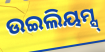
ଉଇଲିୟମ୍ସ୍